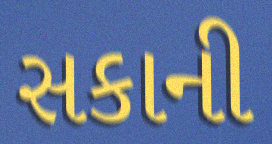
સકાની